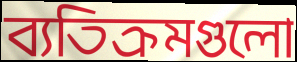
ব্যতিক্রমগুলো